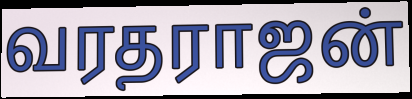
வரதராஜன்